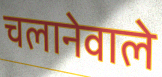
चलानेवाले